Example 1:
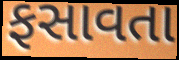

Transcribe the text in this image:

ફસાવતા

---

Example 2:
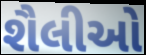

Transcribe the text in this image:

શૈલીઓ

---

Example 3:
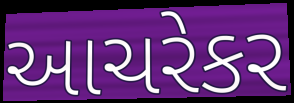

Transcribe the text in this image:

આચરેકર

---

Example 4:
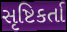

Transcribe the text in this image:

સૃષ્ટિકર્તા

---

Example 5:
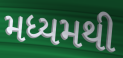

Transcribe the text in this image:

મધ્યમથી